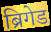
ब्रिगेड